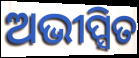
ଅଭୀପ୍ସିତ